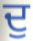
ਦੁ